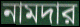
নামদার